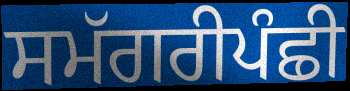
ਸਮੱਗਰੀਪੰਛੀ